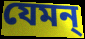
যেমন্